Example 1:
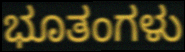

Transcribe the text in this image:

ಭೂತಂಗಳು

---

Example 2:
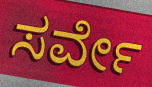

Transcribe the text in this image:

ಸರ್ವೇ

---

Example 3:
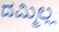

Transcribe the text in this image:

ದಮ್ಮಿಲ್ಲ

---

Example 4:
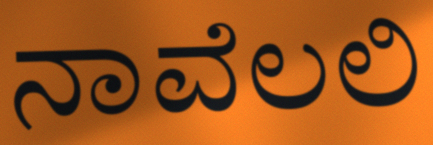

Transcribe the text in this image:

ನಾವೆಲಲಿ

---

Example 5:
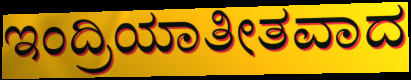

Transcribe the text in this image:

ಇಂದ್ರಿಯಾತೀತವಾದ